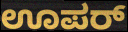
ಊಪರ್